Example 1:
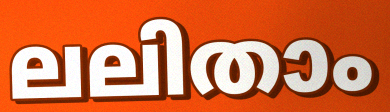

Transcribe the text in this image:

ലലിതാം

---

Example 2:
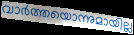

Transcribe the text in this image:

വാർത്തയൊന്നുമായില്ല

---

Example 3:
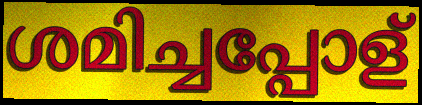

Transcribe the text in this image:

ശമിച്ചപ്പോള്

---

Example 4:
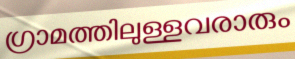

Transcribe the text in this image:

ഗ്രാമത്തിലുള്ളവരാരും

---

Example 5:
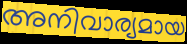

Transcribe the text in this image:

അനിവാര്യമായ